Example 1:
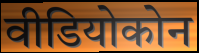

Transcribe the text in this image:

वीडियोकोन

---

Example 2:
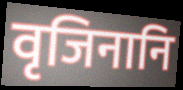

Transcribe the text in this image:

वृजिनानि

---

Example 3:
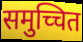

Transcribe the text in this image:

समुच्चित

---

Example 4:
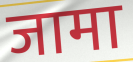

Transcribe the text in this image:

जामा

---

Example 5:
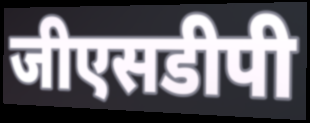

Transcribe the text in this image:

जीएसडीपी